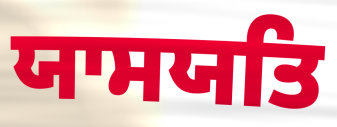
ਯਾਸਯਤਿ